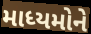
માધ્યમોને